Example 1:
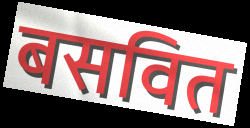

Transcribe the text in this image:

बसवित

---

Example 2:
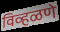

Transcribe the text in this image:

विव्हळणे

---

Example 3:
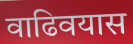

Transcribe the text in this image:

वाढिवयास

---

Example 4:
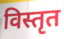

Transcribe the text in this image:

विस्तृत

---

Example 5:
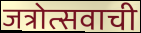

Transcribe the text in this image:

जत्रोत्सवाची